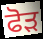
ਫੋਡ਼